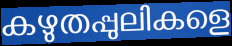
കഴുതപ്പുലികളെ